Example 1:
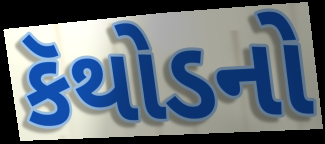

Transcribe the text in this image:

કૅથોડનો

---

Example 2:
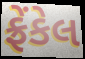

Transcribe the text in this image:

ફ્રેંકેલ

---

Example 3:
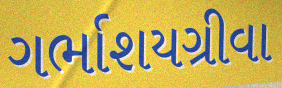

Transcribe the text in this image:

ગર્ભાશયગ્રીવા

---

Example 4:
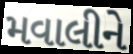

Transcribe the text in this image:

મવાલીને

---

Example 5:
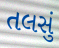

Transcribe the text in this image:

તલસું